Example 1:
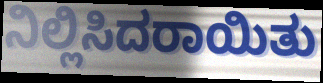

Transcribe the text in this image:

ನಿಲ್ಲಿಸಿದರಾಯಿತು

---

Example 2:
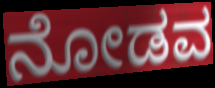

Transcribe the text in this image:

ನೋಡವ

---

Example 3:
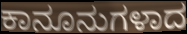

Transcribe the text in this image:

ಕಾನೂನುಗಳಾದ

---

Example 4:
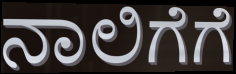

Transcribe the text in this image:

ನಾಲಿಗೆಗೆ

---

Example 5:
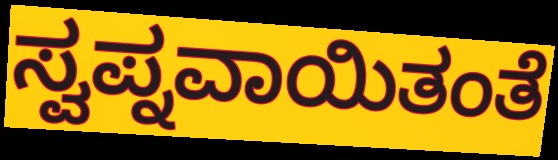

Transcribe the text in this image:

ಸ್ವಪ್ನವಾಯಿತಂತೆ